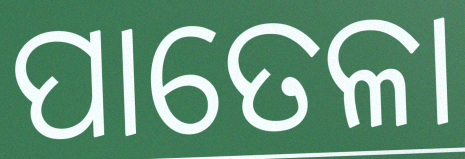
ପାତେଳା